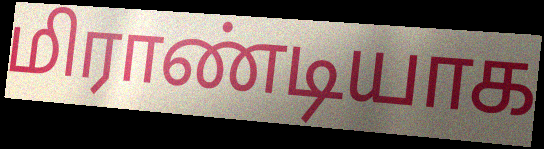
மிராண்டியாக